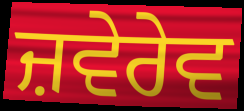
ਜ਼ਵੇਰੇਵ